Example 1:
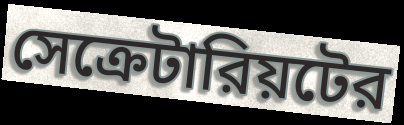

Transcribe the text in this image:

সেক্রেটারিয়টের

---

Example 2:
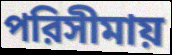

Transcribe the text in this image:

পরিসীমায়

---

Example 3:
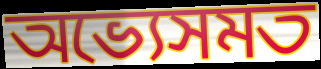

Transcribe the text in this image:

অভ্যেসমত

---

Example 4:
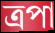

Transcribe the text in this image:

ত্রপা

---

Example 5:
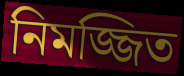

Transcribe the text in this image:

নিমজ্জিত